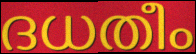
ദധതീം